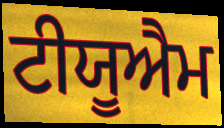
ਟੀਯੂਐਮ